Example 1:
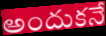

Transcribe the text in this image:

అందుకనే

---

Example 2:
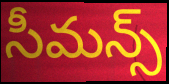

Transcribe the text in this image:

సీమన్స్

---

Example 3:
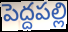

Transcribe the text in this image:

పెద్దపల్లి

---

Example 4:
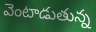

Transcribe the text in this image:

వెంటాడుతున్న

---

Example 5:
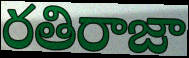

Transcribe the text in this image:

రతిరాజా